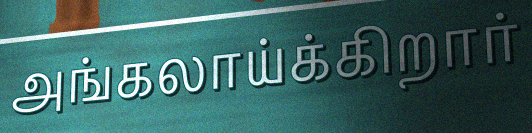
அங்கலாய்க்கிறார்